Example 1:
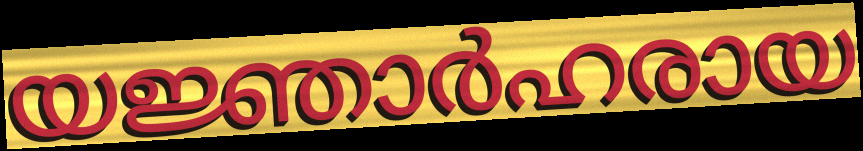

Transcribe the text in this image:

യജ്ഞാർഹരായ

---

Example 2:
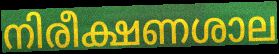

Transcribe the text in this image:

നിരീക്ഷണശാല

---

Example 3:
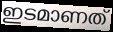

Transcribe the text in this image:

ഇടമാണത്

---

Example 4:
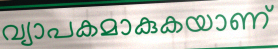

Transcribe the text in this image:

വ്യാപകമാകുകയാണ്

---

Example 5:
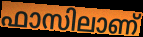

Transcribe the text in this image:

ഫാസിലാണ്